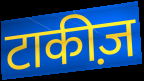
टाकीज़